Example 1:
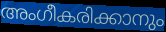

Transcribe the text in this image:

അംഗീകരിക്കാനും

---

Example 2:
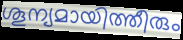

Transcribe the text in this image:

ശൂന്യമായിത്തീരും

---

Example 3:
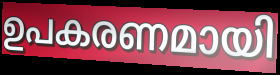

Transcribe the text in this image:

ഉപകരണമായി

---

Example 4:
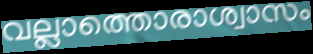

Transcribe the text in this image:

വല്ലാത്തൊരാശ്വാസം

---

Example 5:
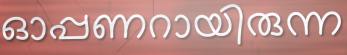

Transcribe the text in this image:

ഓപ്പണറായിരുന്ന